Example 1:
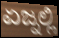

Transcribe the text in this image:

ಏಜ್ನಲ್ಲಿ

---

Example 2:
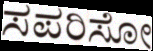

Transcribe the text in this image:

ಸಪರಿಸೋ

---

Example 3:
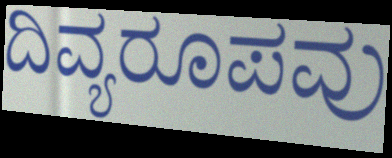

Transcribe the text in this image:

ದಿವ್ಯರೂಪವು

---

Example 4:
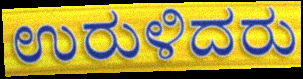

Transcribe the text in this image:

ಉರುಳಿದರು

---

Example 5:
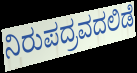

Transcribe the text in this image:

ನಿರುಪದ್ರವದಲಿಡೆ